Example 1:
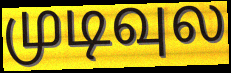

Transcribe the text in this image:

முடிவுல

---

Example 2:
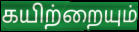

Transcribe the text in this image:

கயிற்றையும்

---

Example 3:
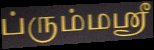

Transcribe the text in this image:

ப்ரும்மஸ்ரீ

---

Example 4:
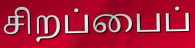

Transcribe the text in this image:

சிறப்பைப்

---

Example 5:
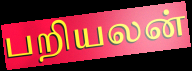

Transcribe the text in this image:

பறியலன்